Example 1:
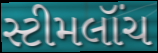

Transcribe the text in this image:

સ્ટીમલૉંચ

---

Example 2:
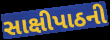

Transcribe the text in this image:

સાક્ષીપાઠની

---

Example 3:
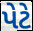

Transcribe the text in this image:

પેટે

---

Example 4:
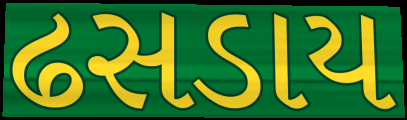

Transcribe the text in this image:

ઢસડાય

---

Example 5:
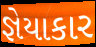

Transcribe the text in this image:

જ્ઞેયાકાર